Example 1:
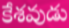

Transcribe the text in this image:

కేశవుడు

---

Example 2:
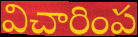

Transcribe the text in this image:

విచారింప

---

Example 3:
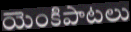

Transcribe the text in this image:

యెంకిపాటలు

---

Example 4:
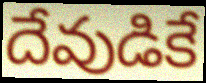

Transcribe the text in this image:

దేవుడికే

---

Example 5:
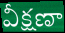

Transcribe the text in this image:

వీక్షణా